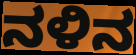
ನಳಿನ